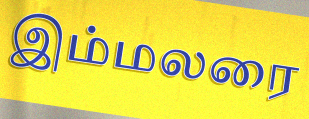
இம்மலரை